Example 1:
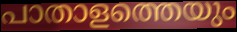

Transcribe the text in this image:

പാതാളത്തെയും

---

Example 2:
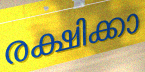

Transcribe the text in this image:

രക്ഷിക്കാ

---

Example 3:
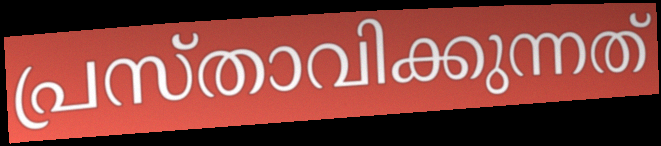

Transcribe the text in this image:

പ്രസ്താവിക്കുന്നത്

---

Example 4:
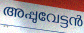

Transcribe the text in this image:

അപ്പുവേട്ടൻ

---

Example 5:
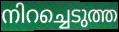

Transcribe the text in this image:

നിറച്ചെടുത്ത